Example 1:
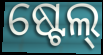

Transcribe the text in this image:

ଷ୍ଟେଲ୍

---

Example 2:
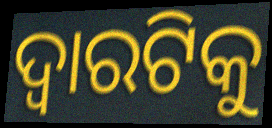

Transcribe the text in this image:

ଦ୍ଵାରଟିକୁ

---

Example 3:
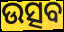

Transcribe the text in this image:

ଉତ୍ସବ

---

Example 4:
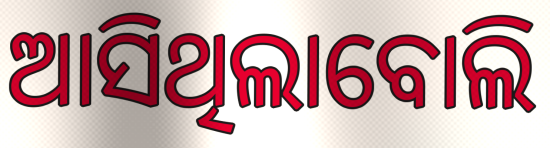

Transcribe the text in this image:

ଆସିଥିଲାବୋଲି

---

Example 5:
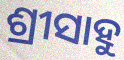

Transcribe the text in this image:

ଶ୍ରୀସାହୁ